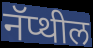
नॅप्थील